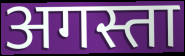
अगस्ता